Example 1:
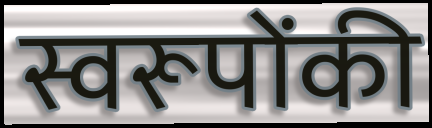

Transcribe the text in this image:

स्वरूपोंकी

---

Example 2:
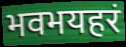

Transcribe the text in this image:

भवभयहरं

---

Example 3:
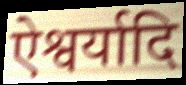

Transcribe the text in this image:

ऐश्वर्यादि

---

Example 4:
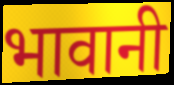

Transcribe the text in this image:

भावानी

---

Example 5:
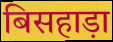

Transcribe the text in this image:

बिसहाड़ा